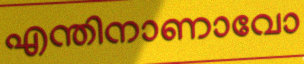
എന്തിനാണാവോ